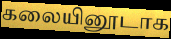
கலையினூடாக